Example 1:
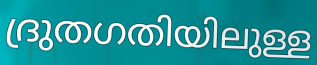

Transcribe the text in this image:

ദ്രുതഗതിയിലുള്ള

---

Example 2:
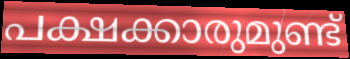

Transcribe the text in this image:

പക്ഷക്കാരുമുണ്ട്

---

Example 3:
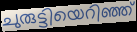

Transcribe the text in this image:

ചുരുട്ടിയെറിഞ്ഞ്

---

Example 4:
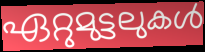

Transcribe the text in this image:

ഏറ്റുമുട്ടലുകൾ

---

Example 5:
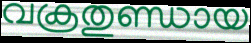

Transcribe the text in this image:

വക്രതുണ്ഡായ